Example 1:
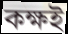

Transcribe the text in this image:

কক্ষই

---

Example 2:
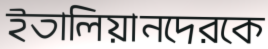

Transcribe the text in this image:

ইতালিয়ানদেরকে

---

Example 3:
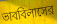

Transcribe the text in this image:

ভাববিলাসের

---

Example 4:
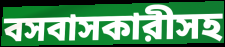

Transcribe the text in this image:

বসবাসকারীসহ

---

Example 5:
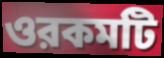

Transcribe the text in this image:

ওরকমটি